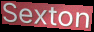
Sexton